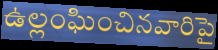
ఉల్లంఘించినవారిపై